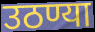
उठण्या